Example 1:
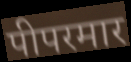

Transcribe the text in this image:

पीपरमार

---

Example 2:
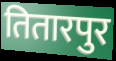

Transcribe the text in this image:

तितारपुर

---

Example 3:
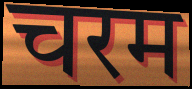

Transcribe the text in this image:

चरम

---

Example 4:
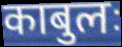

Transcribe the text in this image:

काबुलः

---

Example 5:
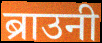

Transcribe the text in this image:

ब्राउनी